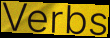
Verbs